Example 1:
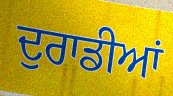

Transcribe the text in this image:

ਦੁਰਾਡੀਆਂ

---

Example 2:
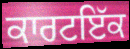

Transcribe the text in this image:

ਕਾਰਟਇੱਕ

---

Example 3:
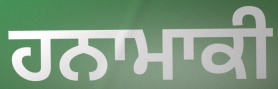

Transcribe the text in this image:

ਹਨਾਮਾਕੀ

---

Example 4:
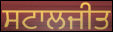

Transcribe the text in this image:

ਸਟਾਲਜੀਤ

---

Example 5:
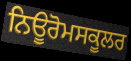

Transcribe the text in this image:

ਨਿਊਰੋਮਸਕੂਲਰ